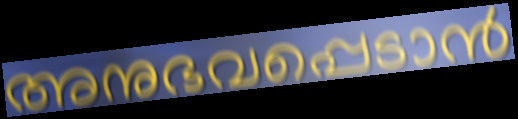
അനുഭവപ്പെടാൻ